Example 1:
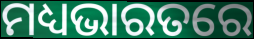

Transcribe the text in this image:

ମଧ୍ୟଭାରତରେ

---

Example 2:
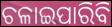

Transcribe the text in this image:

ଚଳାଇପାରିବି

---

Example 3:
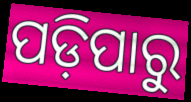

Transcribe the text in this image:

ପଡ଼ିପାରୁ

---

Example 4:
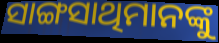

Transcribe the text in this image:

ସାଙ୍ଗସାଥିମାନଙ୍କୁ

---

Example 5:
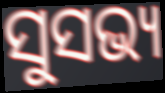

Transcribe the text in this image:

ସୁସଭ୍ୟ